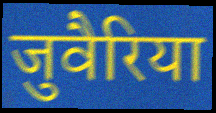
जुवैरिया